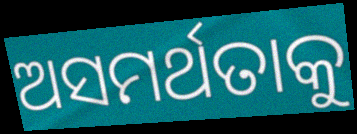
ଅସମର୍ଥତାକୁ